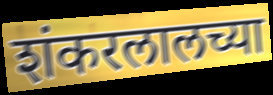
शंकरलालच्या